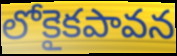
లోకైకపావన